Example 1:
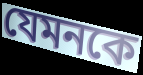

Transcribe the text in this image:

যেমনকে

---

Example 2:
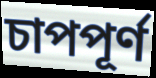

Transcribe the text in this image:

চাপপূর্ণ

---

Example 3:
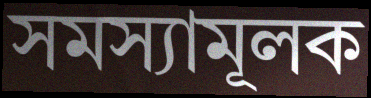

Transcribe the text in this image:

সমস্যামূলক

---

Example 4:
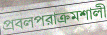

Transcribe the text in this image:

প্রবলপরাক্রমশালী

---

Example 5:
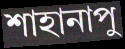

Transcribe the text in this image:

শাহানাপু